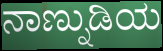
ನಾಣ್ನುಡಿಯ